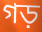
গড়